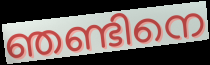
ഞണ്ടിനെ